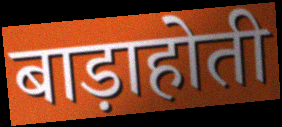
बाड़ाहोती